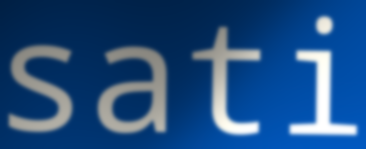
sati